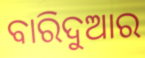
ବାରିଦୁଆର